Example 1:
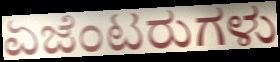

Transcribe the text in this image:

ಏಜೆಂಟರುಗಳು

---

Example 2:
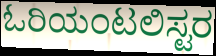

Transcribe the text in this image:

ಓರಿಯಂಟಲಿಸ್ಟರ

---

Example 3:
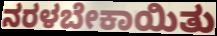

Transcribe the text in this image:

ನರಳಬೇಕಾಯಿತು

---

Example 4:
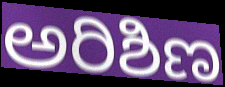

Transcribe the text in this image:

ಅರಿಶಿಣ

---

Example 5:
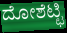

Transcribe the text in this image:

ದೋಶೆಟ್ಟಿ